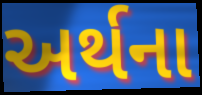
અર્થના